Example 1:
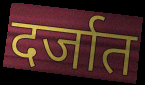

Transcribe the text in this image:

दर्जात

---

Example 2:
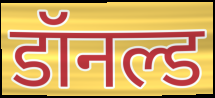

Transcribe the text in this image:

डॉनल्ड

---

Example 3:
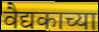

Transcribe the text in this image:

वैद्यकाच्या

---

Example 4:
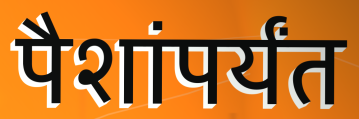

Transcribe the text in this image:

पैशांपर्यंत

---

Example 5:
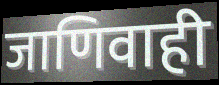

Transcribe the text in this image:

जाणिवाही